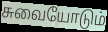
சுவையோடும்